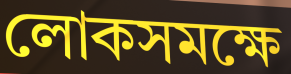
লোকসমক্ষে